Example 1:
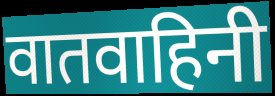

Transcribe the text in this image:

वातवाहिनी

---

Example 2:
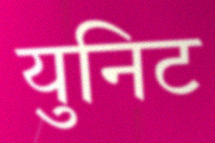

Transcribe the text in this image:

युनिट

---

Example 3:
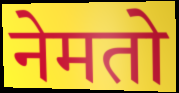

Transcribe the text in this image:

नेमतो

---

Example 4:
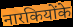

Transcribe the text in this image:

नारकियोंके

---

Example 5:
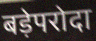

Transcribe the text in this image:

बड़ेपरोदा